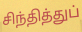
சிந்தித்துப்